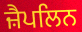
ਜ਼ੈਪਲਿਨ